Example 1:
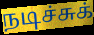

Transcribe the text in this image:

நடிச்சுக்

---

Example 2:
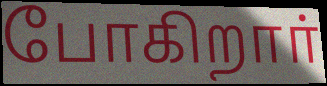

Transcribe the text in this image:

போகிறார்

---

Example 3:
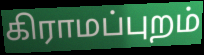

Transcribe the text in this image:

கிராமப்புறம்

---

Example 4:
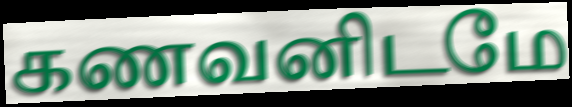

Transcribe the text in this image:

கணவனிடமே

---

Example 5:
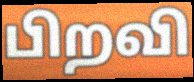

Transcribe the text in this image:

பிறவி